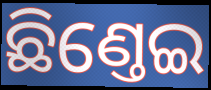
ଛିଣ୍ତେଇ